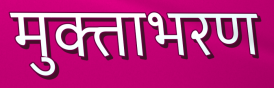
मुक्ताभरण